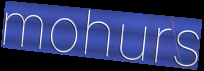
mohurs